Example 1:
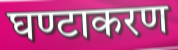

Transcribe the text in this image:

घण्टाकरण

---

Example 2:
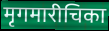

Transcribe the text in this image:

मृगमारीचिका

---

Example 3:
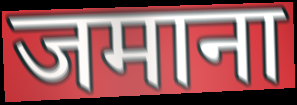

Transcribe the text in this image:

जमाना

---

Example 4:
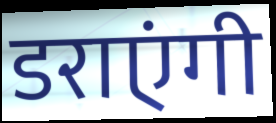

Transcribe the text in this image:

डराएंगी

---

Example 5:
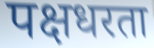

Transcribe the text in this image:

पक्षधरता